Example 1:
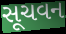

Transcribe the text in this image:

સૂચવન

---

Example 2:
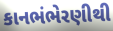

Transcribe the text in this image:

કાનભંભેરણીથી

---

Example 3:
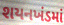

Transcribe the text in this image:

શયનખંડમાં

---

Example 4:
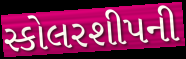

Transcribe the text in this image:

સ્કોલરશીપની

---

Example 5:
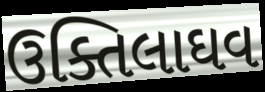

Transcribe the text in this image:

ઉક્તિલાઘવ